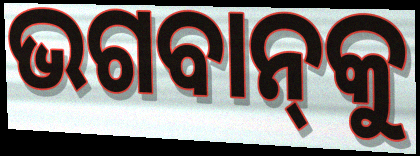
ଭଗବାନ୍‌କୁ